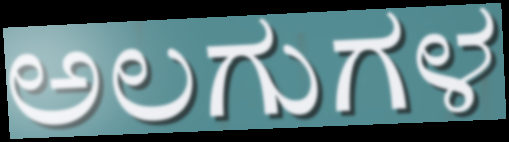
ಅಲಗುಗಳ